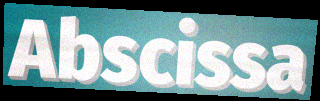
Abscissa